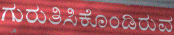
ಗುರುತಿಸಿಕೊಂಡಿರುವ